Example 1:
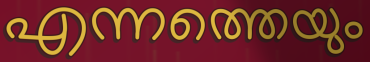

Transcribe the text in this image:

എന്നത്തെയും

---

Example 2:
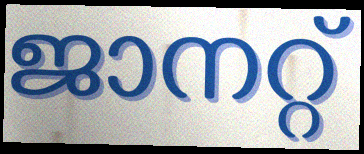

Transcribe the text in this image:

ജാനറ്റ്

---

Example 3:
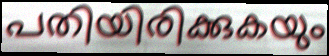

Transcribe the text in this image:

പതിയിരിക്കുകയും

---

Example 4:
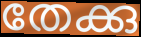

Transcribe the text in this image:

തേക്കു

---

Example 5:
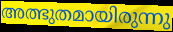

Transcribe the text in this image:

അത്ഭുതമായിരുന്നു